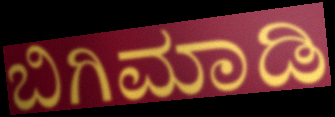
ಬಿಗಿಮಾಡಿ